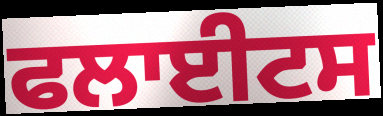
ਫਲਾਈਟਸ